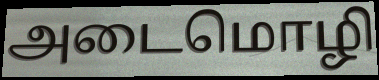
அடைமொழி